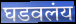
घडवलंय